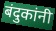
बंदुकांनी